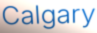
Calgary